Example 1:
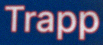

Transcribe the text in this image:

Trapp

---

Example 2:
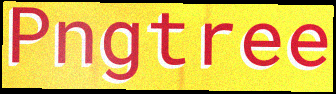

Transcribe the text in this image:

Pngtree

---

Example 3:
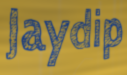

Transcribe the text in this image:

Jaydip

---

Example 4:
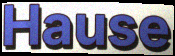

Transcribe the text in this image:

Hause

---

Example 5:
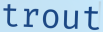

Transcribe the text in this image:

trout